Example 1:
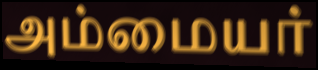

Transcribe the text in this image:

அம்மையர்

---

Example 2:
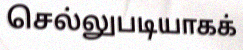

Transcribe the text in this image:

செல்லுபடியாகக்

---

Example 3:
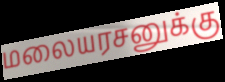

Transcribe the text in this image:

மலையரசனுக்கு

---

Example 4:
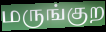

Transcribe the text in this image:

மருங்குற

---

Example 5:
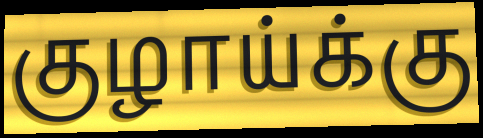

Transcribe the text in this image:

குழாய்க்கு